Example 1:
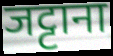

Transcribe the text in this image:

जट्टाना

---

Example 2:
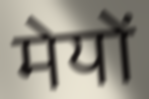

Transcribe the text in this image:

मेयों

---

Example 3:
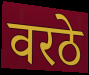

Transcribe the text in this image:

वरठे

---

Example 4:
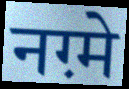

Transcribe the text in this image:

नग़्मे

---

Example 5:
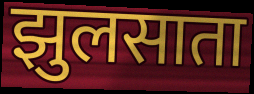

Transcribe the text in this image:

झुलसाता